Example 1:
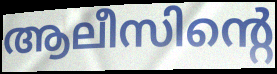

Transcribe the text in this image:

ആലീസിന്റെ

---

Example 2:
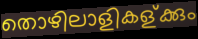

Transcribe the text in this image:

തൊഴിലാളികള്ക്കും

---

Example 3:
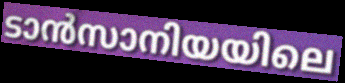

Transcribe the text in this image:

ടാൻസാനിയയിലെ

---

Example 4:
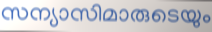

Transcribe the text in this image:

സന്യാസിമാരുടെയും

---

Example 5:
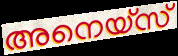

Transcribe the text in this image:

അനെയ്സ്